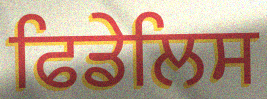
ਫਿਡੇਲਿਸ